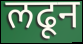
लढून